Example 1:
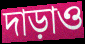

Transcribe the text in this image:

দাড়াও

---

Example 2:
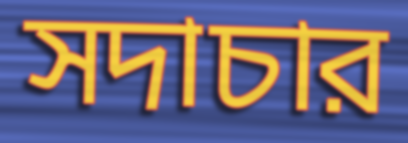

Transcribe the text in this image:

সদাচার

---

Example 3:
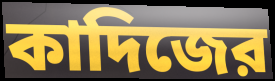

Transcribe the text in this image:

কাদিজের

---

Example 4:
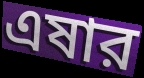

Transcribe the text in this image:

এষার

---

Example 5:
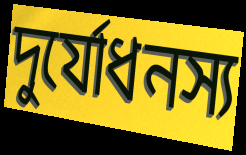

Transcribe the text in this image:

দুর্যোধনস্য